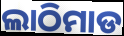
ଲାଠିମାଡ